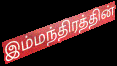
இம்மந்திரத்தின்